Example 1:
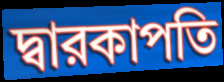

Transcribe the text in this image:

দ্বারকাপতি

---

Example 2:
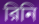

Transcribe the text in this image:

রিনি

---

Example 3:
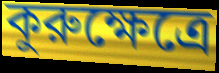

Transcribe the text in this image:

কুরুক্ষেত্রে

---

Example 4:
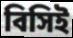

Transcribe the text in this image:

বিসিই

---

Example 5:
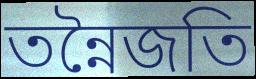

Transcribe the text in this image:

তন্নৈজতি